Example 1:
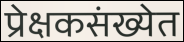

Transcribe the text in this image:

प्रेक्षकसंख्येत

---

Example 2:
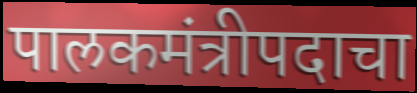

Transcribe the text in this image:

पालकमंत्रीपदाचा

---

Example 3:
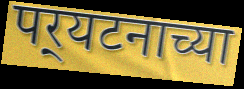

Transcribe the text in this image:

पर्यटनाच्या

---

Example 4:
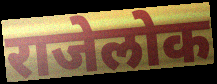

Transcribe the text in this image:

राजेलोक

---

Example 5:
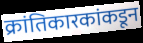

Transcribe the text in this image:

क्रांतिकारकांकडून